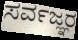
ಸರ್ವಜ್ಞರ